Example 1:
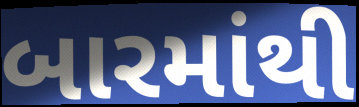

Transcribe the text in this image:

બારમાંથી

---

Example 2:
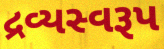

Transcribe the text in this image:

દ્રવ્યસ્વરૂપ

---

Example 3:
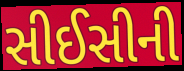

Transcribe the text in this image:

સીઈસીની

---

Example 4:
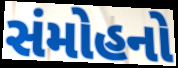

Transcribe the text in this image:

સંમોહનો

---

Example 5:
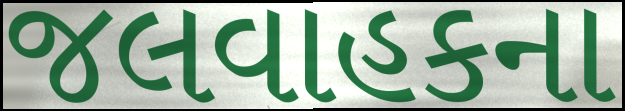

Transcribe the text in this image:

જલવાહકના